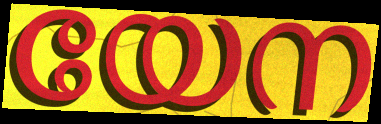
യേന